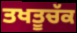
ਤਖਤੂਚੱਕ